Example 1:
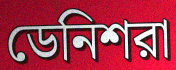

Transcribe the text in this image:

ডেনিশরা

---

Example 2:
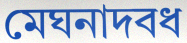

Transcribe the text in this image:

মেঘনাদবধ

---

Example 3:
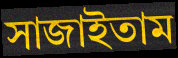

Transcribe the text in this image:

সাজাইতাম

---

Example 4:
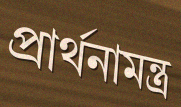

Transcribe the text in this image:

প্রার্থনামন্ত্র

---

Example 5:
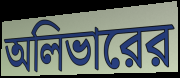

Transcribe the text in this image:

অলিভারের